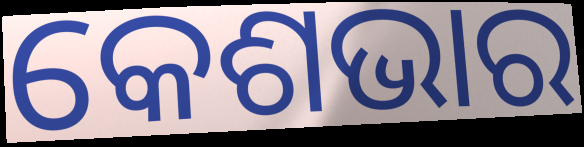
କେଶଭାର